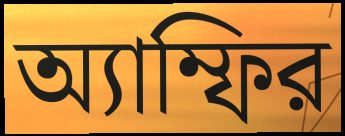
অ্যাম্ফির